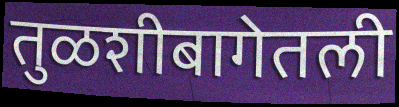
तुळशीबागेतली